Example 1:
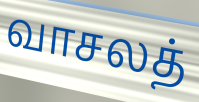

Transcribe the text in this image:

வாசலத்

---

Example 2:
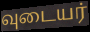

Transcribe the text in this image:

வுடையர்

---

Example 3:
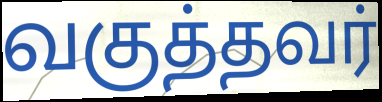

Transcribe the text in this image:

வகுத்தவர்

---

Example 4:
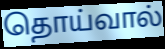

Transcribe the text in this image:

தொய்வால்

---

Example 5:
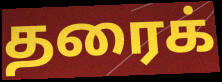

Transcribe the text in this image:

தரைக்